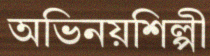
অভিনয়শিল্পী